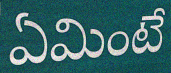
ఏమింటే